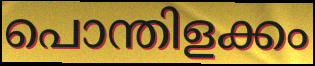
പൊന്തിളക്കം